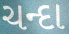
ચન્દા